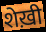
शेख़ी